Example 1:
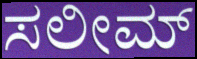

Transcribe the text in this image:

ಸಲೀಮ್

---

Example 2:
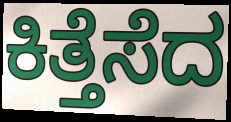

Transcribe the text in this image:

ಕಿತ್ತೆಸೆದ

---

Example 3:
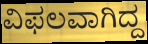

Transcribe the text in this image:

ವಿಫಲವಾಗಿದ್ದ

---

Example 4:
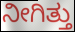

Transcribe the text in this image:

ನೀಗಿತ್ತು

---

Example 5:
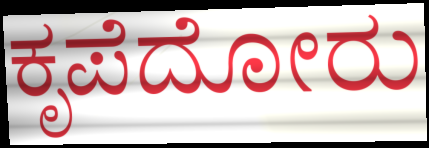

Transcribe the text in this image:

ಕೃಪೆದೋರು